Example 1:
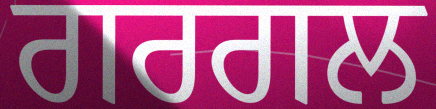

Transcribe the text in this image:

ਗਰਗਲ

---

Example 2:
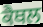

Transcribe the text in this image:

ਕੈਥਲ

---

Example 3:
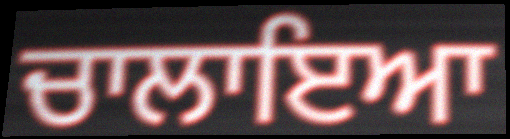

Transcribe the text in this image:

ਚਾਲਾਇਆ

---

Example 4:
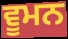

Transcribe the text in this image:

ਵੂਮਨ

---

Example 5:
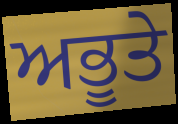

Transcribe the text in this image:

ਅਭੂਤੇ